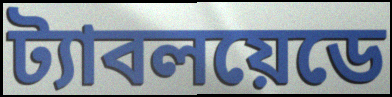
ট্যাবলয়েডে